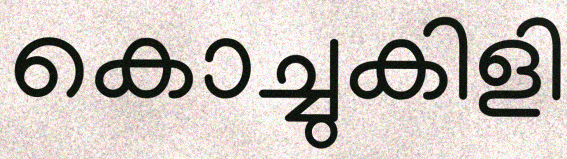
കൊച്ചുകിളി